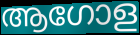
ആഗോള